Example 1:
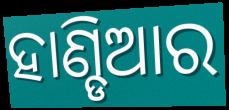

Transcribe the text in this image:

ହାଣ୍ଡିଆର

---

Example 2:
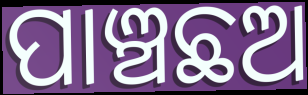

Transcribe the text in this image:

ପାଞ୍ଚଛଅ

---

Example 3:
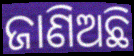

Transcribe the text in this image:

ଜାଣିଅଛି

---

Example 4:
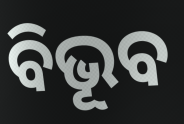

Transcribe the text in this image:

ବିଭୂବ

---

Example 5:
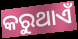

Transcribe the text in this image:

କରୁଥାଏଁ